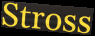
Stross